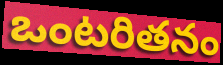
ఒంటరితనం